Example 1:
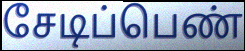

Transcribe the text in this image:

சேடிப்பெண்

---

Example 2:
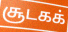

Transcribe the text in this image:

சூடகக்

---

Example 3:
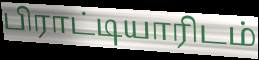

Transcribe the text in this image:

பிராட்டியாரிடம்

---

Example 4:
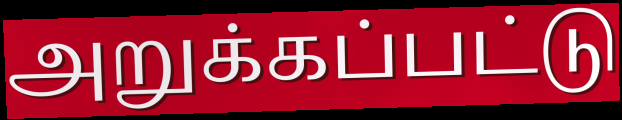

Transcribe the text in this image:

அறுக்கப்பட்டு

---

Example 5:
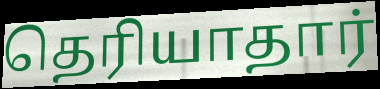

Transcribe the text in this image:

தெரியாதார்